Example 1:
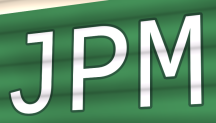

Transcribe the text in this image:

JPM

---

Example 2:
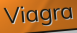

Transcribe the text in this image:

Viagra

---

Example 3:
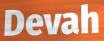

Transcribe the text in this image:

Devah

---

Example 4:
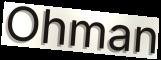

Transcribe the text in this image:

Ohman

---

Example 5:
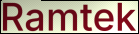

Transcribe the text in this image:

Ramtek